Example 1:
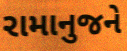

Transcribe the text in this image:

રામાનુજને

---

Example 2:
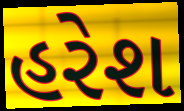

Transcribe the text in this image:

હરેશ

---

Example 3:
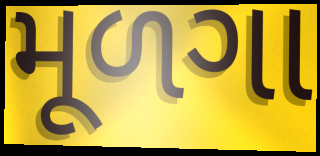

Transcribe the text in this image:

મૂળગા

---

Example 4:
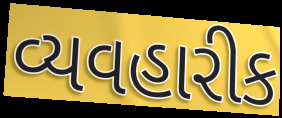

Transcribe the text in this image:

વ્યવહારીક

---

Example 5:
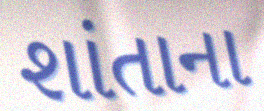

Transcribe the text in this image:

શાંતાના